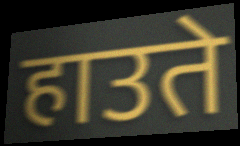
हाउते